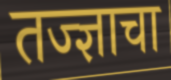
तज्ज्ञाचा